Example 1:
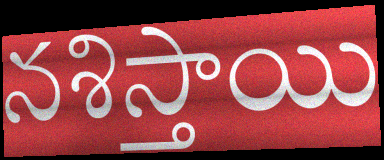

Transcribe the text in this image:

నశిస్తాయి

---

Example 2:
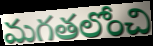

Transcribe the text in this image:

మగతలోంచి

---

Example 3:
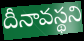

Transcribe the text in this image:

దీనావస్థని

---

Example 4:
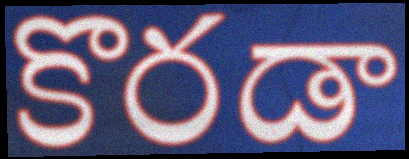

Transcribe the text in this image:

కొరడా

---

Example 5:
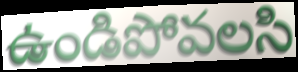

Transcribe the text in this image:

ఉండిపోవలసి